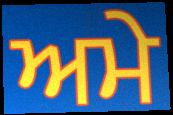
ਅਮੇ